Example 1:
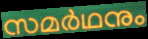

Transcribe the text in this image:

സമർഥനും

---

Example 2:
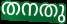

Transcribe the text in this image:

തനതു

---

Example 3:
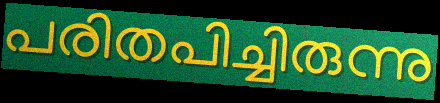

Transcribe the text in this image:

പരിതപിച്ചിരുന്നു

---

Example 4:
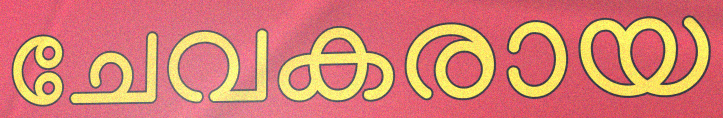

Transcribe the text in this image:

ചേവകരായ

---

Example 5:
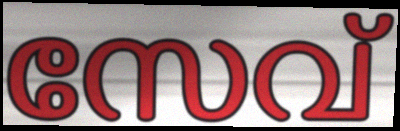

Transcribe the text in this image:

സേവ്